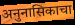
अनुनासिकाचा